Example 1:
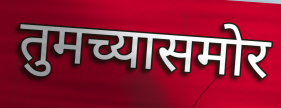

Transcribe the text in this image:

तुमच्यासमोर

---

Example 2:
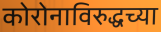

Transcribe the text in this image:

कोरोनाविरुद्धच्या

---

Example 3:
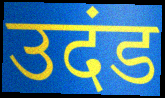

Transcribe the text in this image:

उदंड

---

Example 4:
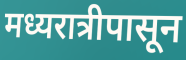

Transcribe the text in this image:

मध्यरात्रीपासून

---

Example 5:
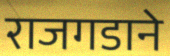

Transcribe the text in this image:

राजगडाने